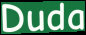
Duda